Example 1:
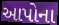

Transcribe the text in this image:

આપોના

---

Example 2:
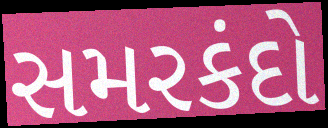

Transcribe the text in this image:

સમરકંદો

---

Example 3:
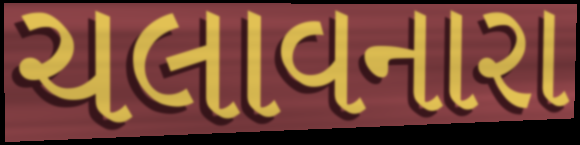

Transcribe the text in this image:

ચલાવનારા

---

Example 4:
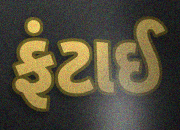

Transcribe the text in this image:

ફંટાઈ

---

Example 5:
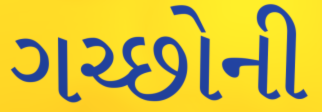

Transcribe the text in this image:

ગચ્છોની